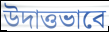
উদাত্তভাবে